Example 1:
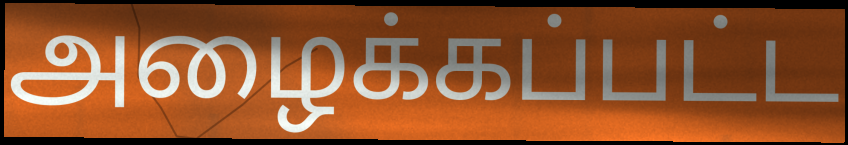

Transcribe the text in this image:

அழைக்கப்பட்ட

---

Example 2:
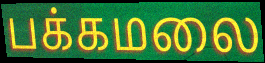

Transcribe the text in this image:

பக்கமலை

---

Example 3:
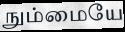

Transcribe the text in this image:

நும்மையே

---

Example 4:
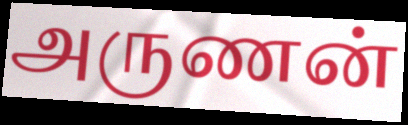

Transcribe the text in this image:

அருணன்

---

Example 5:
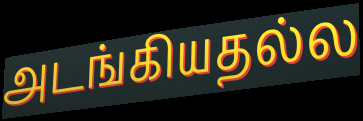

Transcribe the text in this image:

அடங்கியதல்ல